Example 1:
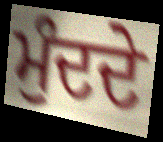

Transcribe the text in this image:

ਮੁੰਦਦੇ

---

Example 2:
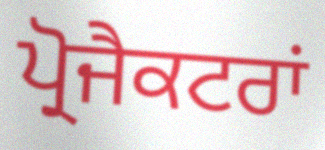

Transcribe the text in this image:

ਪ੍ਰੋਜੈਕਟਰਾਂ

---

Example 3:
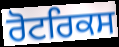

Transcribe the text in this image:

ਰੋਟਰਿਕਸ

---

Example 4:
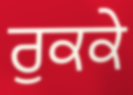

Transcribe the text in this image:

ਰੁਕਕੇ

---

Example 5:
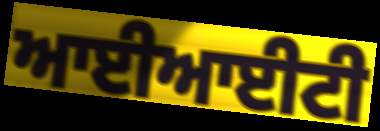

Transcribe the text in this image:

ਆਈਆਈਟੀ